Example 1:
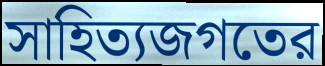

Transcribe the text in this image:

সাহিত্যজগতের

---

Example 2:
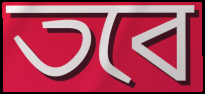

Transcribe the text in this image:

তবে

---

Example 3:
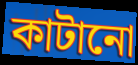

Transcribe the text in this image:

কাটানো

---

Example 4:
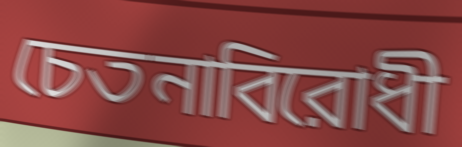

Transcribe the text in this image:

চেতনাবিরোধী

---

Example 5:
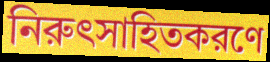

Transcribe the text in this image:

নিরুৎসাহিতকরণে